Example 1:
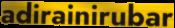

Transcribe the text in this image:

adirainirubar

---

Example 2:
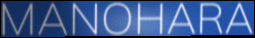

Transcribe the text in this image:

MANOHARA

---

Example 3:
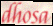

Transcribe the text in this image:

dhosa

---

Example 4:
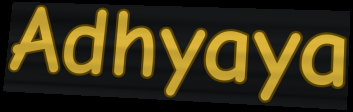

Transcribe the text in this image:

Adhyaya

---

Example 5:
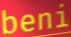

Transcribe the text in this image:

beni